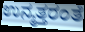
ಉನ್ಮತ್ತರಂತೆ